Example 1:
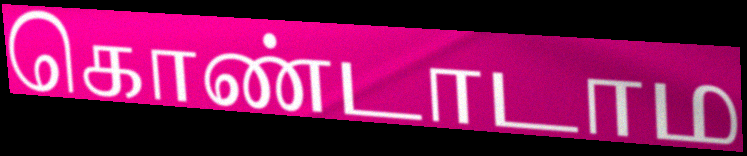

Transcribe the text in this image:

கொண்டாடாம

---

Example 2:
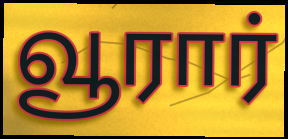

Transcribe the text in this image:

வூரார்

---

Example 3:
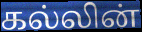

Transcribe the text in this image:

கல்லின்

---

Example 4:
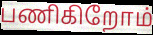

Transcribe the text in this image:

பணிகிறோம்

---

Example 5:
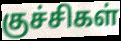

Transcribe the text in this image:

குச்சிகள்